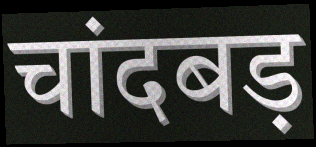
चांदबड़